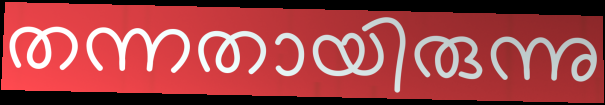
തന്നതായിരുന്നു